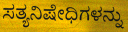
ಸತ್ಯನಿಷೇಧಿಗಳನ್ನು